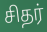
சிதர்